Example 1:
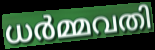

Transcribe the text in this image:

ധർമ്മവതി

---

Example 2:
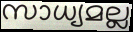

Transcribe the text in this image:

സാധ്യമല്ല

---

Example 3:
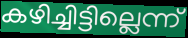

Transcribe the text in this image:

കഴിച്ചിട്ടില്ലെന്ന്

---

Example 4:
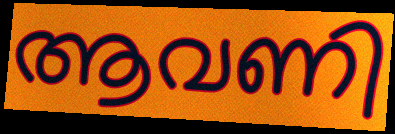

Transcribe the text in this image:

ആവണി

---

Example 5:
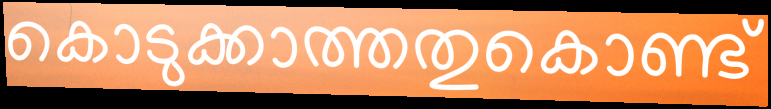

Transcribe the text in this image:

കൊടുക്കാത്തതുകൊണ്ട്